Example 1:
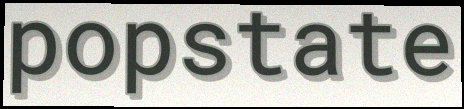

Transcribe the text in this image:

popstate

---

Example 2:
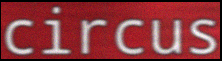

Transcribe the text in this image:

circus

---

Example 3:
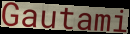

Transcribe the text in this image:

Gautami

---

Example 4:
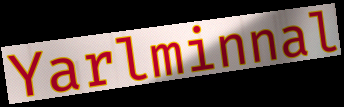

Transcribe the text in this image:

Yarlminnal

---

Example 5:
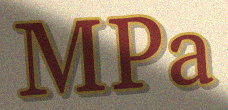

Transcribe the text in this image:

MPa